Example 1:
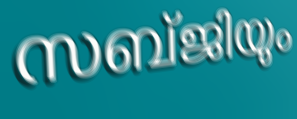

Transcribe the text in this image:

സബ്ജിയും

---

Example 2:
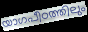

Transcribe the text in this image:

യാഗപീഠത്തിലും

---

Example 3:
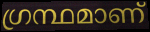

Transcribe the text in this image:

ഗ്രന്ഥമാണ്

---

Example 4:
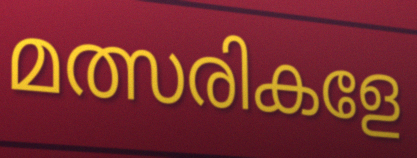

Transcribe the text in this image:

മത്സരികളേ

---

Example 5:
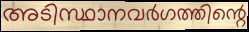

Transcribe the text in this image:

അടിസ്ഥാനവർഗത്തിന്റെ